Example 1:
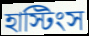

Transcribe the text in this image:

হাস্টিংস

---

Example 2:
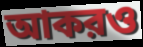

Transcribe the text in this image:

আকরও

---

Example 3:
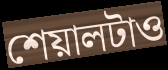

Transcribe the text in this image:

শেয়ালটাও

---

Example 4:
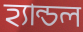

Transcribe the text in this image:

হ্যান্ডল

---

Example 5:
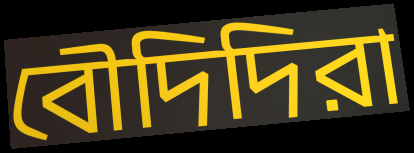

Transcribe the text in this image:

বৌদিদিরা